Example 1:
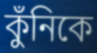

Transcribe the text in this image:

কুঁনিকে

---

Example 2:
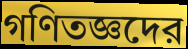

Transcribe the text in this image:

গণিতজ্ঞদের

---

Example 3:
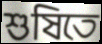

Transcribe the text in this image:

শুষিতে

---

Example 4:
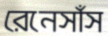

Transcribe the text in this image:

রেনেসাঁস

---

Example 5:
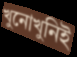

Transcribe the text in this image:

খুনোখুনিই